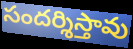
సందర్శిస్తావు